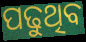
ପଢୁଥିବ